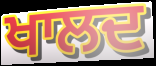
ਖਾਲਦ